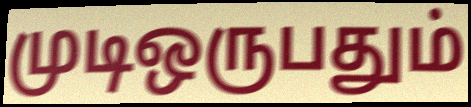
முடிஒருபதும்